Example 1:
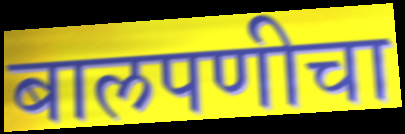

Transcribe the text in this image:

बालपणीचा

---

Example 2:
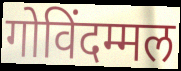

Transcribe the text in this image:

गोविंदम्मल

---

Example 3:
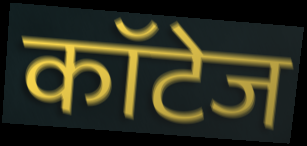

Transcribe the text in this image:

कॉटेज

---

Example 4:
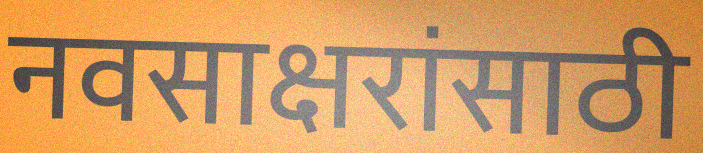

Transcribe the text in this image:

नवसाक्षरांसाठी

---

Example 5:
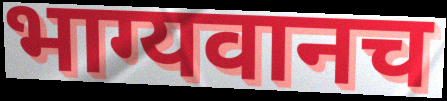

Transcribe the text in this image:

भाग्यवानच